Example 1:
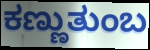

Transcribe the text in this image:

ಕಣ್ಣುತುಂಬ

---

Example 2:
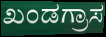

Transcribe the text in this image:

ಖಂಡಗ್ರಾಸ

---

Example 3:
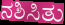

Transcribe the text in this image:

ನಶಿಸಿತು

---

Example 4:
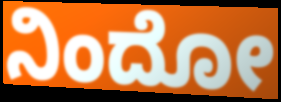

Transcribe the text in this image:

ನಿಂದೋ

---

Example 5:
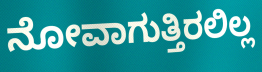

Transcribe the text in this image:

ನೋವಾಗುತ್ತಿರಲಿಲ್ಲ